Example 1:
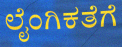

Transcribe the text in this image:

ಲೈಂಗಿಕತೆಗೆ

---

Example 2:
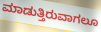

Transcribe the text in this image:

ಮಾಡುತ್ತಿರುವಾಗಲೂ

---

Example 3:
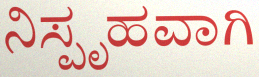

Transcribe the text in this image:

ನಿಸ್ಪೃಹವಾಗಿ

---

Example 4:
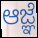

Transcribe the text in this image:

ಆಜ್ಞೆ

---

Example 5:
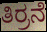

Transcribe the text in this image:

ತಿರ್ರನೆ